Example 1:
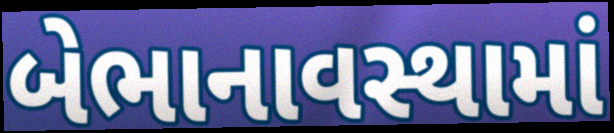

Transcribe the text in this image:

બેભાનાવસ્થામાં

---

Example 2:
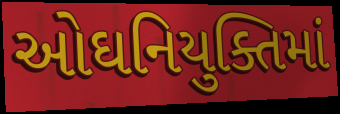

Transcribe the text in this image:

ઓઘનિયુક્તિમાં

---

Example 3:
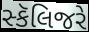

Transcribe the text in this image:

સ્કૅલિજરે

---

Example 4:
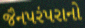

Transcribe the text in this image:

જૈનપરંપરાનો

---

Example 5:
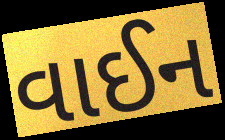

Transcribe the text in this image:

વાઈન